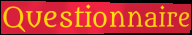
Questionnaire